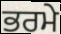
ਭਰਮੇ